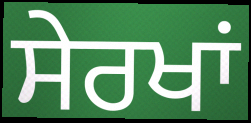
ਸੇਰਖਾਂ